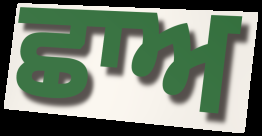
ਛਾਅ